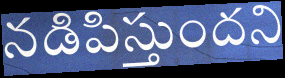
నడిపిస్తుందని